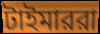
টাইমাররা